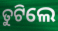
ତୁଟିଲେ